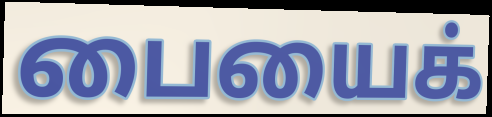
பையைக்